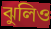
ঝুলিও